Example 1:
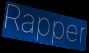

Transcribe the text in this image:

Rapper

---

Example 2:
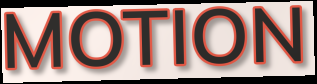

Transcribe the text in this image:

MOTION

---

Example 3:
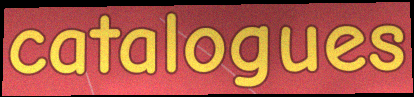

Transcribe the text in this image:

catalogues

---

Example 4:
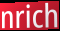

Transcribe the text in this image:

nrich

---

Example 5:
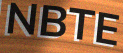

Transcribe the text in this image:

NBTE